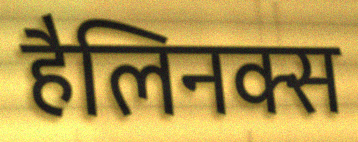
हैलिनक्स